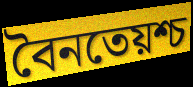
বৈনতেয়শ্চ